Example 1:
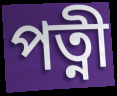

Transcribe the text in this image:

পত্নী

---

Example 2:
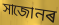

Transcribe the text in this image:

সাজোনৰ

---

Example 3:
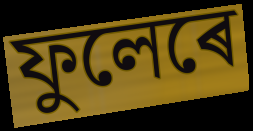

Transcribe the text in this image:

ফুলেৰে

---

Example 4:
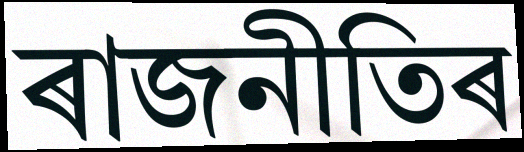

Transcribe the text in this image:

ৰাজনীতিৰ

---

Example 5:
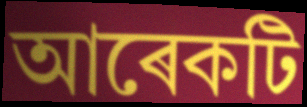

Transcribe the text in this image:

আৰেকটি